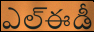
ఎల్ఈడీ